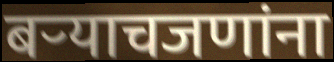
बऱ्याचजणांना